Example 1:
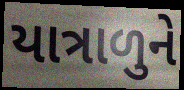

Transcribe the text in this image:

યાત્રાળુને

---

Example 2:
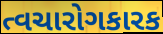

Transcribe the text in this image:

ત્વચારોગકારક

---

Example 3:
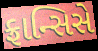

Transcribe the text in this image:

ફ્રાન્સિસે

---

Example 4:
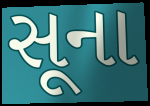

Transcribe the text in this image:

સૂના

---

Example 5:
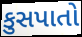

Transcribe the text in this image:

કુસપાતો